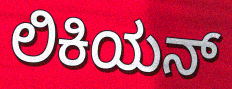
ಲಿಕಿಯನ್